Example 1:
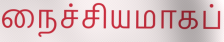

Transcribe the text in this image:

நைச்சியமாகப்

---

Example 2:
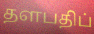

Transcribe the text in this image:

தளபதிப்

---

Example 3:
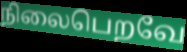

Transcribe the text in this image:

நிலைபெறவே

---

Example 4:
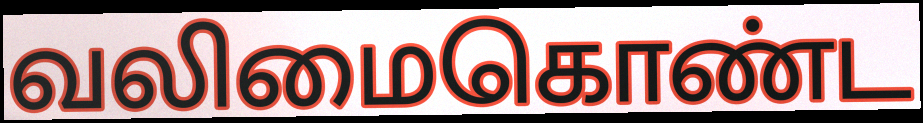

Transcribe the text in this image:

வலிமைகொண்ட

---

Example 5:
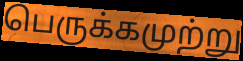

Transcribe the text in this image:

பெருக்கமுற்று